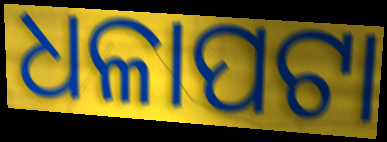
ଧଳାପଟା